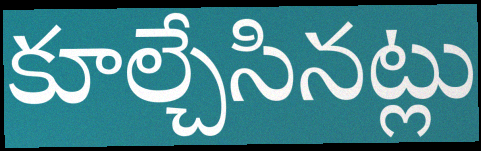
కూల్చేసినట్లు